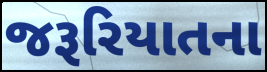
જરૂરિયાતના